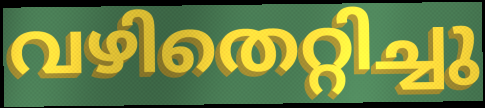
വഴിതെറ്റിച്ചു